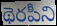
థెరపీని